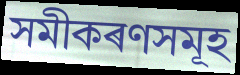
সমীকৰণসমূহ